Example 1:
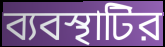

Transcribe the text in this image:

ব্যবস্থাটির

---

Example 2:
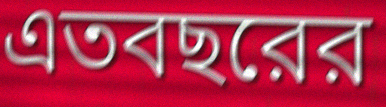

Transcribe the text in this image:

এতবছরের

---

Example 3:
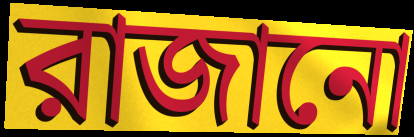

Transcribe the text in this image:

রাজানো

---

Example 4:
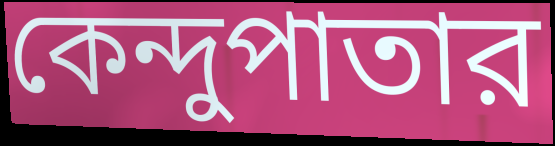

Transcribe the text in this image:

কেন্দুপাতার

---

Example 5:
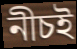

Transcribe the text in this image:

নীচই